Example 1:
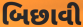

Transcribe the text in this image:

બિછાવી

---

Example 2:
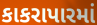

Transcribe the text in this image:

કાકરાપારમાં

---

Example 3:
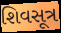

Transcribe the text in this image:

શિવસૂત્ર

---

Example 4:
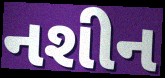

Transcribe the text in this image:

નશીન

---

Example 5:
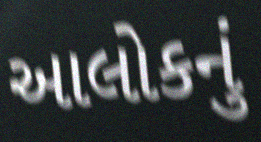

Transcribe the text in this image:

આલોકનું